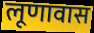
लूणावास